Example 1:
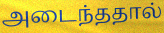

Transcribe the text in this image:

அடைந்ததால்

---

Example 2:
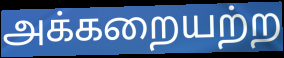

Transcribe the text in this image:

அக்கறையற்ற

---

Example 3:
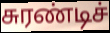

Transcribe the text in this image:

சுரண்டிச்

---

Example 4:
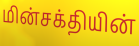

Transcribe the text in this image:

மின்சக்தியின்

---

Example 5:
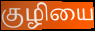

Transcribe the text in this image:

குழியை